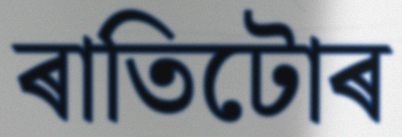
ৰাতিটোৰ